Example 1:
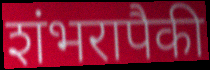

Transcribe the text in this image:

शंभरापैकी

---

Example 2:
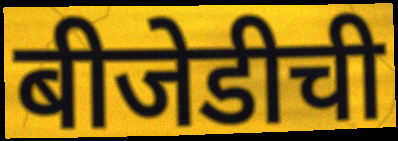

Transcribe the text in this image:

बीजेडीची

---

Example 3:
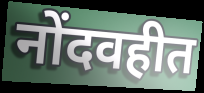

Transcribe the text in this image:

नोंदवहीत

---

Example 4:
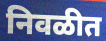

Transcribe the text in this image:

निवळीत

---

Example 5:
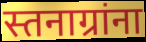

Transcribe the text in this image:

स्तनाग्रांना